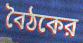
বৈঠকের